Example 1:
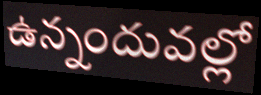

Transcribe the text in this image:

ఉన్నందువల్లో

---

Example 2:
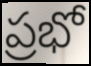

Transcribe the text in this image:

ప్రభో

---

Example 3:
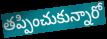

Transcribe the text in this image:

తప్పించుకున్నారో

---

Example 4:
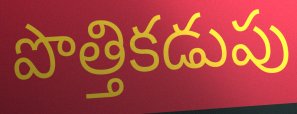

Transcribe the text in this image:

పొత్తికడుపు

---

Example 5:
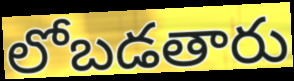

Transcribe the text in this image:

లోబడతారు